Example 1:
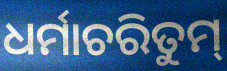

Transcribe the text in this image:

ଧର୍ମାଚରିତୁମ୍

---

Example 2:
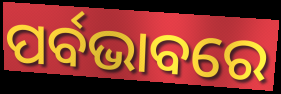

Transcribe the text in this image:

ପର୍ବଭାବରେ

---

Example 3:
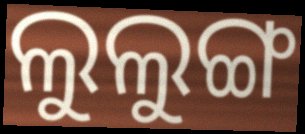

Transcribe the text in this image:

ଲୁଲୁଙ୍ଗ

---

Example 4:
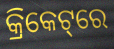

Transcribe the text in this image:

କ୍ରିକେଟ୍‌ରେ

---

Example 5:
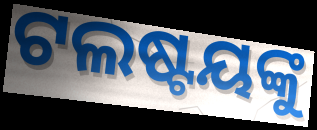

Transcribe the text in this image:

ଟଲଷ୍ଟୟଙ୍କୁ